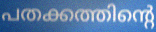
പതക്കത്തിന്റെ